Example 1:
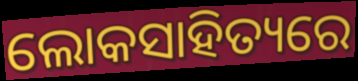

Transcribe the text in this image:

ଲୋକସାହିତ୍ୟରେ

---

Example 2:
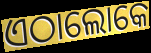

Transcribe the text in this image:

ଏଠାଲୋକେ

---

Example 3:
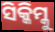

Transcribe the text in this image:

ସିକ୍କିମ୍କୁ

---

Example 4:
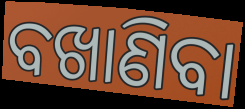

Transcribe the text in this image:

ବଖାଣିବା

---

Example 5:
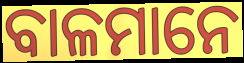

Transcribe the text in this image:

ବାଳମାନେ